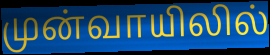
முன்வாயிலில்